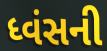
ધ્વંસની